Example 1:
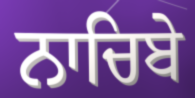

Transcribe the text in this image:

ਨਾਚਿਬੇ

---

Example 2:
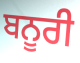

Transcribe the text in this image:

ਬਨੂਰੀ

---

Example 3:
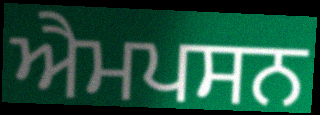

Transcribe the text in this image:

ਐਮਪਸਨ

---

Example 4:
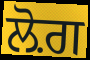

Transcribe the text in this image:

ਲ਼ੋਗ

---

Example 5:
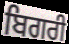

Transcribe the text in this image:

ਬਿਗਰੀ